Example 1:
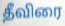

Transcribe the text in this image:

தீவிரை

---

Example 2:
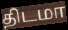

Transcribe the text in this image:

திடமா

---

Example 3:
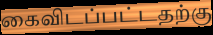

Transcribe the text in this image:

கைவிடப்பட்டதற்கு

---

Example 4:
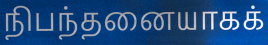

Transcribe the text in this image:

நிபந்தனையாகக்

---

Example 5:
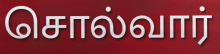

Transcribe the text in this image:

சொல்வார்